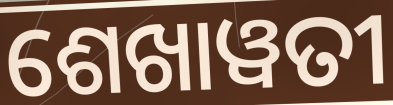
ଶେଖାୱତୀ